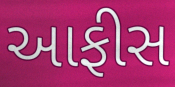
આફીસ